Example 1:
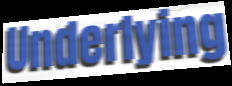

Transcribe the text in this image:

Underlying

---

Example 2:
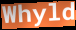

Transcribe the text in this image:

Whyld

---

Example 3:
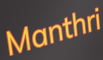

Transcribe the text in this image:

Manthri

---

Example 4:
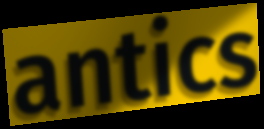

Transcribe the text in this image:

antics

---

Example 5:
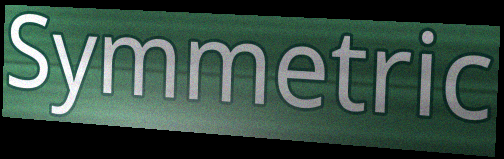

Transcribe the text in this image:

Symmetric